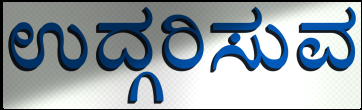
ಉದ್ಗರಿಸುವ